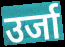
उर्जा